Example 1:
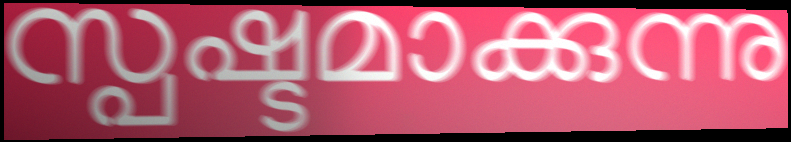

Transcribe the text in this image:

സ്പഷ്ടമാക്കുന്നു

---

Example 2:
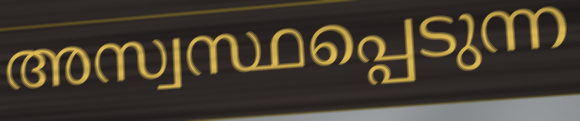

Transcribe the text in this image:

അസ്വസ്ഥപ്പെടുന്ന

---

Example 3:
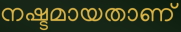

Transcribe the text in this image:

നഷ്ടമായതാണ്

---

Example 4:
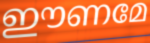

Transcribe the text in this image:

ഈണമേ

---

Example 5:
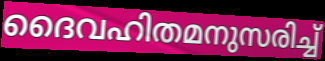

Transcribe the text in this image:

ദൈവഹിതമനുസരിച്ച്